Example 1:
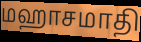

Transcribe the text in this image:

மஹாசமாதி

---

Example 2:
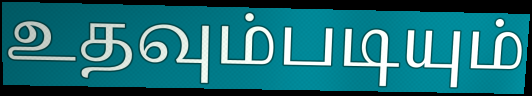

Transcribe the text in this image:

உதவும்படியும்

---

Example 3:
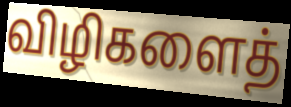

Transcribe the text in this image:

விழிகளைத்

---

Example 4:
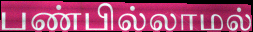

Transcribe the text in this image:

பண்பில்லாமல்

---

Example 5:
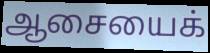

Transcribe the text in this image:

ஆசையைக்